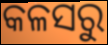
କଳସରୁ